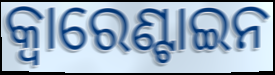
କ୍ୱାରେଣ୍ଟାଇନ